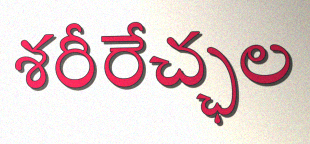
శరీరేచ్ఛల